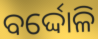
ବର୍ଦ୍ଦୋଳି